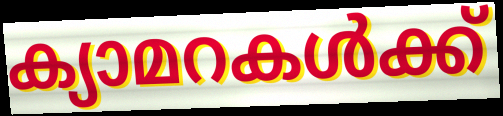
ക്യാമറകൾക്ക്